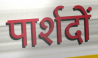
पार्शदों